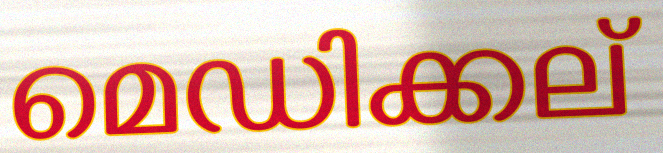
മെഡിക്കല്